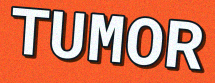
TUMOR